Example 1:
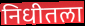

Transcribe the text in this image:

निधीतला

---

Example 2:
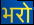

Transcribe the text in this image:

भरो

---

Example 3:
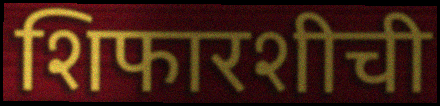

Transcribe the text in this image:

शिफारशीची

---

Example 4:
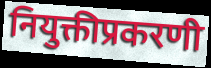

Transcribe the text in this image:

नियुक्तीप्रकरणी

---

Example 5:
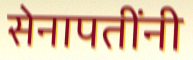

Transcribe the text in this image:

सेनापतींनी